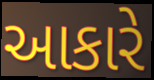
આકારે